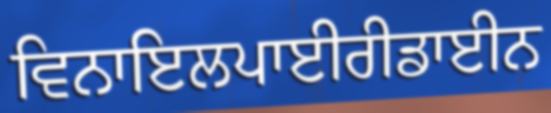
ਵਿਨਾਇਲਪਾਈਰੀਡਾਈਨ